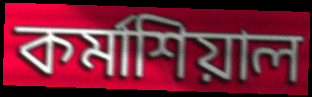
কর্মাশিয়াল